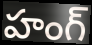
హంగ్